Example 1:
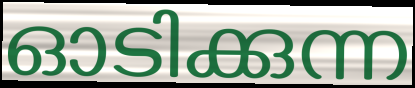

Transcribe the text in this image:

ഓടിക്കുന്ന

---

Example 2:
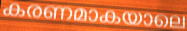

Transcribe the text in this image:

കരണമാകയാലെ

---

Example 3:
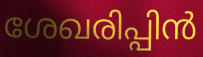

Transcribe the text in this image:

ശേഖരിപ്പിൻ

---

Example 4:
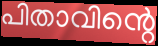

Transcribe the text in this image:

പിതാവിന്റെ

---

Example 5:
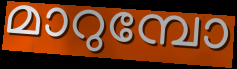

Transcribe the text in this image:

മാറുമ്പോ